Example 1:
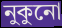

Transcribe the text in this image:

নুকুনো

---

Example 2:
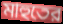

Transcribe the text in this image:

মাহুতের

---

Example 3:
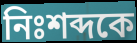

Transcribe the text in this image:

নিঃশব্দকে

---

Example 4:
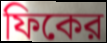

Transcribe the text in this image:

ফিকের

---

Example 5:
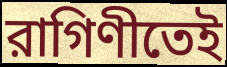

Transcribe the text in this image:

রাগিণীতেই